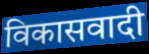
विकासवादी